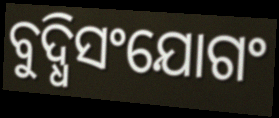
ବୁଦ୍ଧିସଂଯୋଗଂ